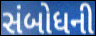
સંબોધની